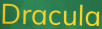
Dracula